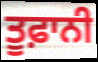
ਤੂਫ਼ਾਨੀ